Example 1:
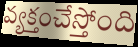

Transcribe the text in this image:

వ్యక్తంచేస్తోంది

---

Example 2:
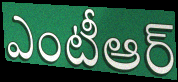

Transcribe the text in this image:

ఎంటీఆర్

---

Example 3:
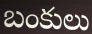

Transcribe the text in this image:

బంకులు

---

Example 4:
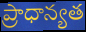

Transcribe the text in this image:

ప్రాధాన్యత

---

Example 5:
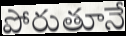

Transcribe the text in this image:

పోరుతూనే